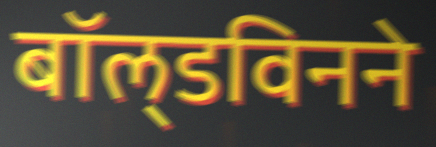
बॉल्डविनने